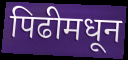
पिढीमधून